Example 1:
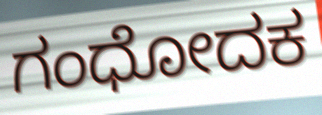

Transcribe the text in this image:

ಗಂಧೋದಕ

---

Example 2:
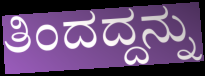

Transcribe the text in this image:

ತಿಂದದ್ದನ್ನು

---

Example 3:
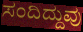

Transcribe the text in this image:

ಸಂದಿದ್ದುವು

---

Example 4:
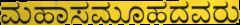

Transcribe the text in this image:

ಮಹಾಸಮೂಹದವರು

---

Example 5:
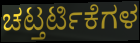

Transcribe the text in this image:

ಚಟ್ತರ್ಟಿಕೆಗಳ